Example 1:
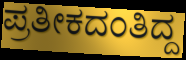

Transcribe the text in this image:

ಪ್ರತೀಕದಂತಿದ್ದ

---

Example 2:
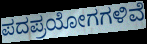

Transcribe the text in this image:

ಪದಪ್ರಯೋಗಗಳಿವೆ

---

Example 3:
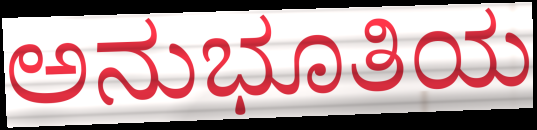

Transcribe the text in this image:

ಅನುಭೂತಿಯ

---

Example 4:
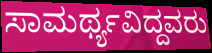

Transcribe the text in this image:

ಸಾಮರ್ಥ್ಯವಿದ್ದವರು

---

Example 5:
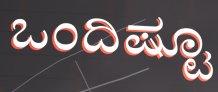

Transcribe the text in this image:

ಒಂದಿಷ್ಟೂ